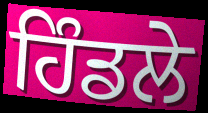
ਹਿੰਡਲੇ